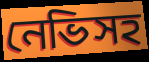
নেভিসহ